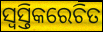
ସ୍ୱସ୍ତିକରେଚିତ